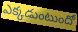
ఎక్కడుంటుందో